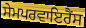
ਸੇਮਪਰਵਾਇਰੈਂਸ